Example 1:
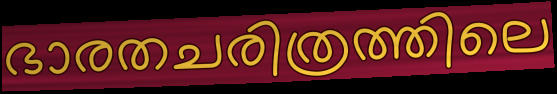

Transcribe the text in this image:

ഭാരതചരിത്രത്തിലെ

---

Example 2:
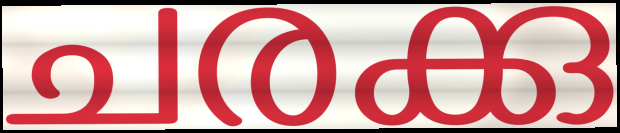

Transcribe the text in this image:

ചരക്കു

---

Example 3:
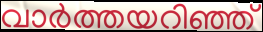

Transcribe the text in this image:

വാർത്തയറിഞ്ഞ്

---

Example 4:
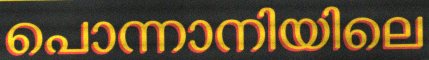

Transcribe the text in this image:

പൊന്നാനിയിലെ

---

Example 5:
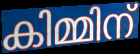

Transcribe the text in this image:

കിമ്മിന്